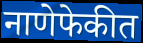
नाणेफेकीत